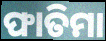
ଫାତିମା